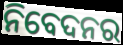
ନିବେଦନର